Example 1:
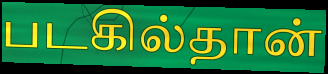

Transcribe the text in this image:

படகில்தான்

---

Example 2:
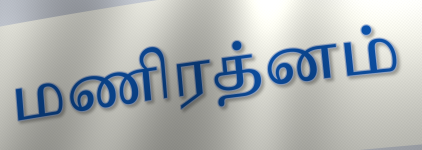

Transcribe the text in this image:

மணிரத்னம்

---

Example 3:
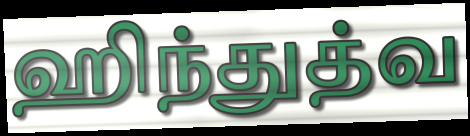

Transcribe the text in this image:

ஹிந்துத்வ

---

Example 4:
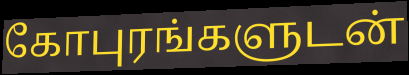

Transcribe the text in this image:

கோபுரங்களுடன்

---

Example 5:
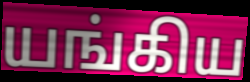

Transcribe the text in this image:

யங்கிய